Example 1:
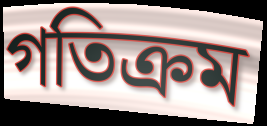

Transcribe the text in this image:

গতিক্রম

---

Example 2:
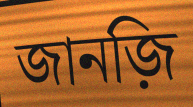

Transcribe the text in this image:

জানজ়ি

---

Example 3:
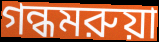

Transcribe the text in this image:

গন্ধমরুয়া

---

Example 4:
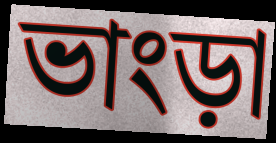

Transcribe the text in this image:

ভাংড়া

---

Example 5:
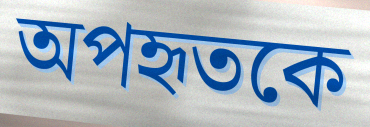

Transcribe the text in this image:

অপহৃতকে